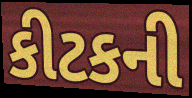
કીટકની